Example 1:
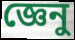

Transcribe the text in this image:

জ্ঞেনু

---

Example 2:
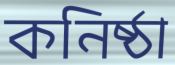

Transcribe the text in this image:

কনিষ্ঠা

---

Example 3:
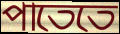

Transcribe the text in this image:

পাতেতে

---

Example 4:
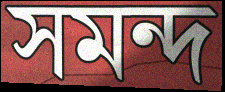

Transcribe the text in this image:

সমন্দ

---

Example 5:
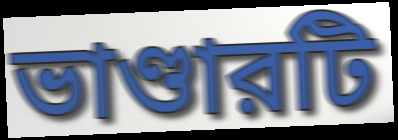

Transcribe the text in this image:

ভাণ্ডারটি